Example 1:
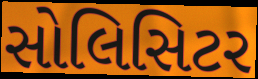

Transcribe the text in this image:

સોલિસિટર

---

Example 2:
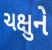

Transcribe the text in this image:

ચક્ષુને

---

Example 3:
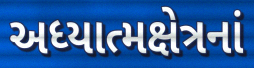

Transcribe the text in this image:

અધ્યાત્મક્ષેત્રનાં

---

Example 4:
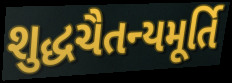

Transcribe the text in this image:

શુદ્ધચૈતન્યમૂર્તિ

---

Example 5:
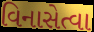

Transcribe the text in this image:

વિનાસેત્વા